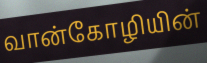
வான்கோழியின்